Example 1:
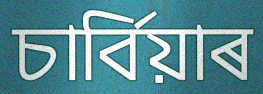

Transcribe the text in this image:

চাৰ্বিয়াৰ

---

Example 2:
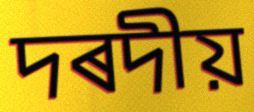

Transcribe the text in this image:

দৰদীয়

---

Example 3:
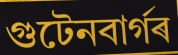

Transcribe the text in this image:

গুটেনবাৰ্গৰ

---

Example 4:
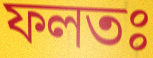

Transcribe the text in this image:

ফলতঃ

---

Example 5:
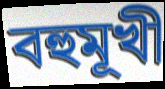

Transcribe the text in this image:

বহুমূখী